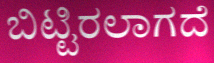
ಬಿಟ್ಟಿರಲಾಗದೆ